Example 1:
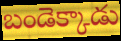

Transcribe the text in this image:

బండెక్కాడు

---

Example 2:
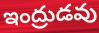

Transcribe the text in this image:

ఇంద్రుడవు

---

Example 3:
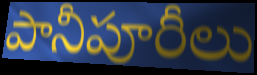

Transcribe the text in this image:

పానీపూరీలు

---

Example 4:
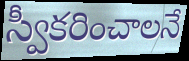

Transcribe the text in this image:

స్వీకరించాలనే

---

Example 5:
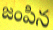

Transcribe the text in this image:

జంపిన